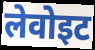
लेवोइट